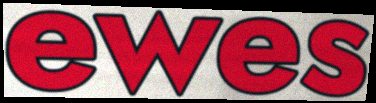
ewes